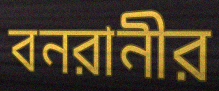
বনরানীর